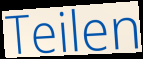
Teilen